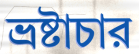
ভ্রষ্টাচার